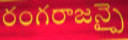
రంగరాజన్పై